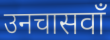
उनचासवाँ